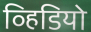
व्हिडियो